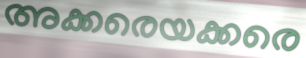
അക്കരെയക്കരെ